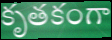
కృతకంగా